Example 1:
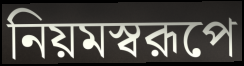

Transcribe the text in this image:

নিয়মস্বরূপে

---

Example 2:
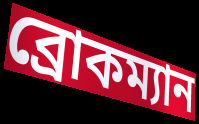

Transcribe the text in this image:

ব্রোকম্যান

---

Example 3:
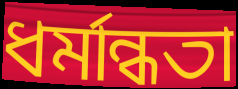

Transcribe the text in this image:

ধর্মান্ধতা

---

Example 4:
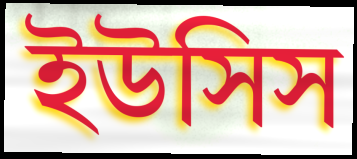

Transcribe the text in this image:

ইউসিস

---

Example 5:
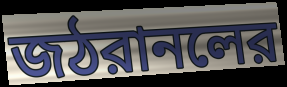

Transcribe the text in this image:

জঠরানলের